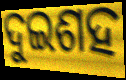
ଦୁଇଶହ